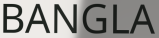
BANGLA